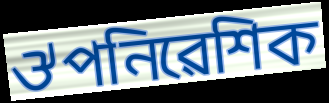
ঔপনিৱেশিক